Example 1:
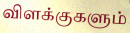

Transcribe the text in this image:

விளக்குகளும்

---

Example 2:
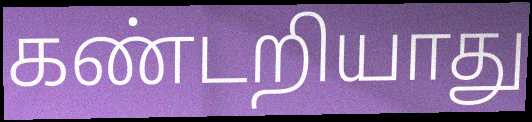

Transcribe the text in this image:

கண்டறியாது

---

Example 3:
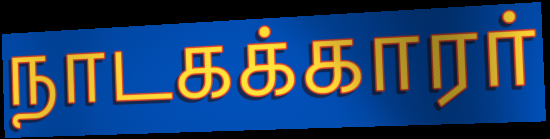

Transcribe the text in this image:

நாடகக்காரர்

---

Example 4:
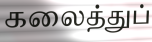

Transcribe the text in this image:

கலைத்துப்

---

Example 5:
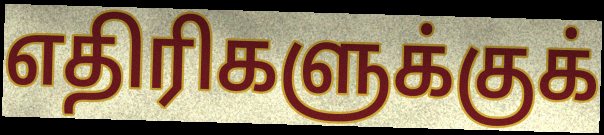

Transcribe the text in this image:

எதிரிகளுக்குக்